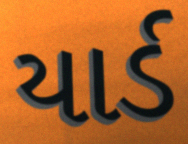
યાર્ડ